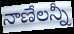
నాణేలన్నీ